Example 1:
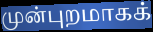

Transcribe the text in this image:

முன்புறமாகக்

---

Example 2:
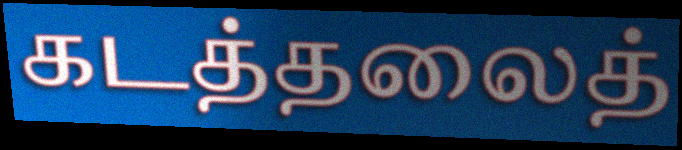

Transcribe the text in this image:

கடத்தலைத்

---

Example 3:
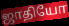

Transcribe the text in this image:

ஜாதியோ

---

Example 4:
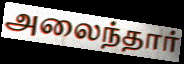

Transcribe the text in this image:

அலைந்தார்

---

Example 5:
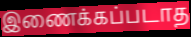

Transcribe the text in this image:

இணைக்கப்படாத